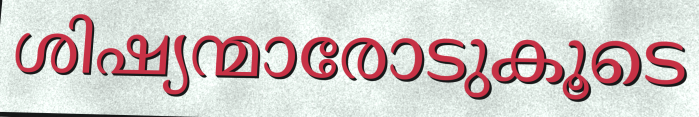
ശിഷ്യന്മാരോടുകൂടെ